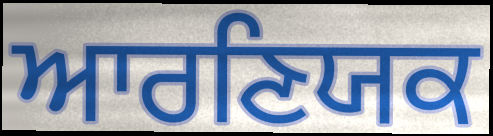
ਆਰਣਿਯਕ